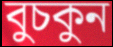
বুচকুন